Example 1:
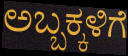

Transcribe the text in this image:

ಅಬ್ಬಕ್ಕಳಿಗೆ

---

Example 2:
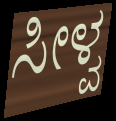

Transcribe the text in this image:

ಸೀಳ್ವ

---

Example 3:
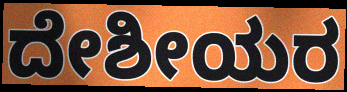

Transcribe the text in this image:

ದೇಶೀಯರ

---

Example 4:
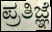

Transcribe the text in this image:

ಪ್ರತಿಜ್ಞೆ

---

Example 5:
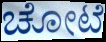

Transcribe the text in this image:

ಚೋಟೆ